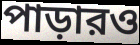
পাড়ারও